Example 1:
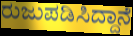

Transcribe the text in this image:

ರುಜುಪಡಿಸಿದ್ದಾನೆ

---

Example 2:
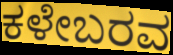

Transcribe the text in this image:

ಕಳೇಬರವ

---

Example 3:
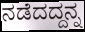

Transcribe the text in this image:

ನಡೆದದ್ದನ್ನ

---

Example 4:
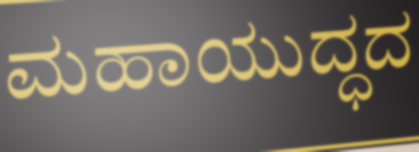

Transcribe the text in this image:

ಮಹಾಯುದ್ಧದ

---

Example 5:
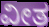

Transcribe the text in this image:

ವೀತ